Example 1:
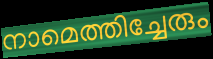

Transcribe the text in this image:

നാമെത്തിച്ചേരും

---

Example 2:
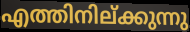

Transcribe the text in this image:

എത്തിനില്ക്കുന്നു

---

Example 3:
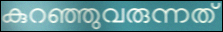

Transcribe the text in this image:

കുറഞ്ഞുവരുന്നത്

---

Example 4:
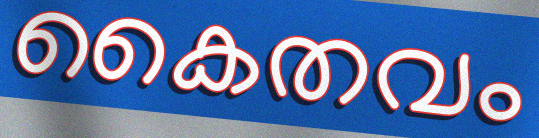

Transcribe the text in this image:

കൈതവം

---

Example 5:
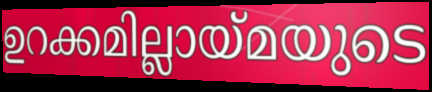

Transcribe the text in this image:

ഉറക്കമില്ലായ്മയുടെ